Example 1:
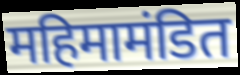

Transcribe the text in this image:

महिमामंडित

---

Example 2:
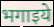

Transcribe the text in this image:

भगाइये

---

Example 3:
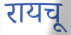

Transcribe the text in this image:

रायचू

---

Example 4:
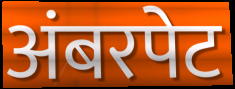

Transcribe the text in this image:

अंबरपेट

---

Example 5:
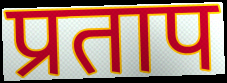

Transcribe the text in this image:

प्रताप